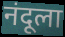
नंदूला